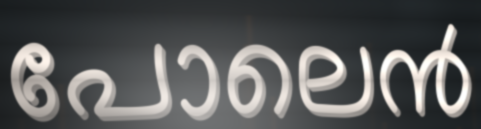
പോലെൻ